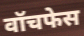
वॉचफेस